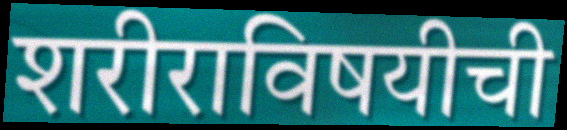
शरीराविषयीची